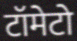
टॉमेटो